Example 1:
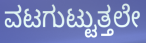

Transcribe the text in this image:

ವಟಗುಟ್ಟುತ್ತಲೇ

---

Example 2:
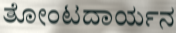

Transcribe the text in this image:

ತೋಂಟದಾರ್ಯನ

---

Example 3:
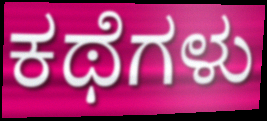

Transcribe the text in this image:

ಕಥೆಗಳು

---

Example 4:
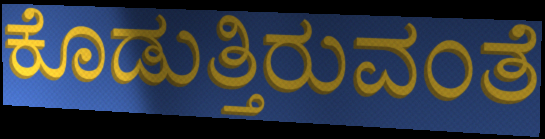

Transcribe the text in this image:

ಕೊಡುತ್ತಿರುವಂತೆ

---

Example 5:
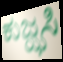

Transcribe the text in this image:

ಕುಜ್ಝಸಿ